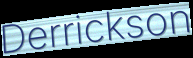
Derrickson